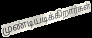
முண்டியடிக்கிறார்கள்